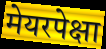
मेयरपेक्षा